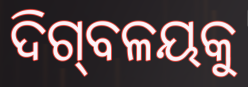
ଦିଗ୍‌ବଳୟକୁ